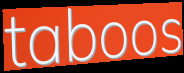
taboos